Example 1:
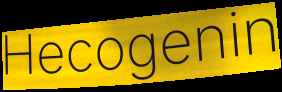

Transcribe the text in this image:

Hecogenin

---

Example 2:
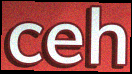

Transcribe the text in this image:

ceh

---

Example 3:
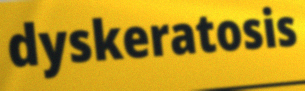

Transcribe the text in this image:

dyskeratosis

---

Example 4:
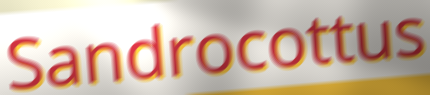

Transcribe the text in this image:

Sandrocottus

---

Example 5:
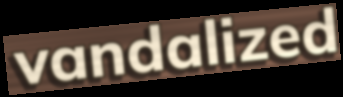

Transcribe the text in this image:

vandalized